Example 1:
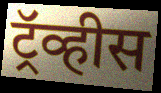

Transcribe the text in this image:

ट्रॅव्हीस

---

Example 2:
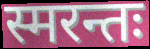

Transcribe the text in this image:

स्मरन्तः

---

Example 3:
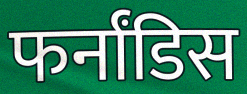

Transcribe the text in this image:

फर्नांडिस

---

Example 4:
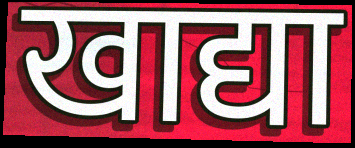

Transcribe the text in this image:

खाद्या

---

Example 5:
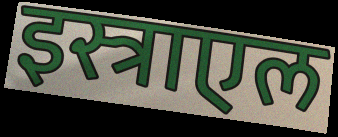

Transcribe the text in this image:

इस्त्राएल